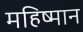
महिष्मान